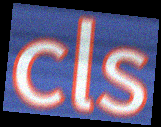
cls